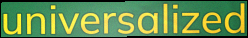
universalized